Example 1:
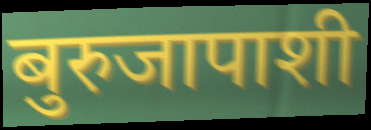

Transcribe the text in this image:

बुरुजापाशी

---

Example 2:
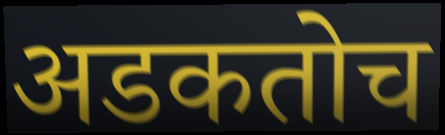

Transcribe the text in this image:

अडकतोच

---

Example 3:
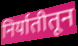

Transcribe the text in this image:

निर्यातीतून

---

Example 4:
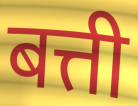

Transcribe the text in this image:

बत्ती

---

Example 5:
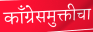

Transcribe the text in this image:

काँग्रेसमुक्तीचा